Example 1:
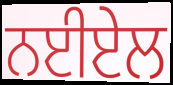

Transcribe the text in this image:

ਨਈਏਲ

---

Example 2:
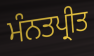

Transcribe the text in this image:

ਮੰਨਤਪ੍ਰੀਤ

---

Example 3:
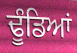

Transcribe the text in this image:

ਢੂੰਡਿਆਂ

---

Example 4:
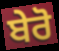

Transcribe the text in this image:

ਬੇਰੋ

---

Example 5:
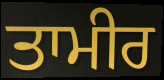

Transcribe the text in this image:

ਤਾਮੀਰ